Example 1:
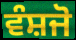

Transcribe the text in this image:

ਵੰਸ਼ਜੋ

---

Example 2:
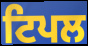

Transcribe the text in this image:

ਟਿਪਲ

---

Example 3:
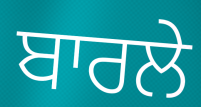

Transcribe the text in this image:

ਬਾਰਲੇ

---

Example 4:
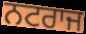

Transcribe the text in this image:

ਨਟਰਾਜ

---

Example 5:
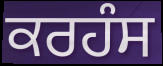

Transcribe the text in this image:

ਕਰਹੰਸ